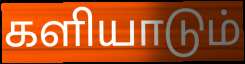
களியாடும்